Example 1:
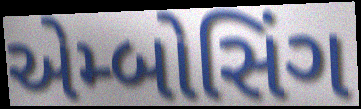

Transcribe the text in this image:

એમ્બોસિંગ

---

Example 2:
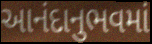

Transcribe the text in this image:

આનંદાનુભવમાં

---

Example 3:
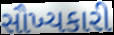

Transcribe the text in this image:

સૌખ્યકારી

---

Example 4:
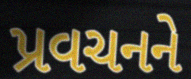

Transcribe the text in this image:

પ્રવચનને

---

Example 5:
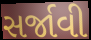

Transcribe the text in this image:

સર્જાવી